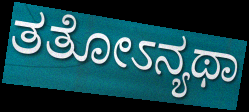
ತತೋಽನ್ಯಥಾ